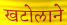
खटोलाने